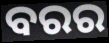
ବରର